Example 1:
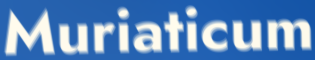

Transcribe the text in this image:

Muriaticum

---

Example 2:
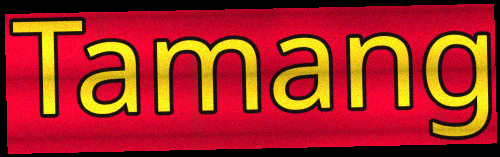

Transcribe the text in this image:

Tamang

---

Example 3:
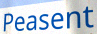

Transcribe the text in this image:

Peasent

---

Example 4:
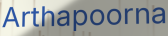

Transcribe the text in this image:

Arthapoorna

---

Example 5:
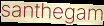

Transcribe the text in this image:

santhegam